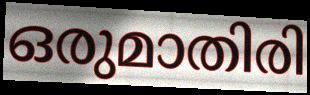
ഒരുമാതിരി